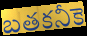
బతకనీకె